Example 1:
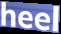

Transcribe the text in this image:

heel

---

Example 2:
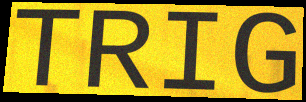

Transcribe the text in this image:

TRIG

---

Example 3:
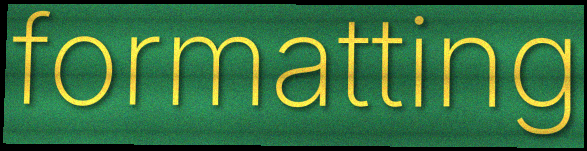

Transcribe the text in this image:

formatting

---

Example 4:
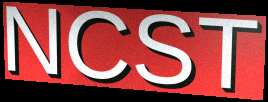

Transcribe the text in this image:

NCST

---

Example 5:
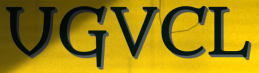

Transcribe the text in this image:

UGVCL